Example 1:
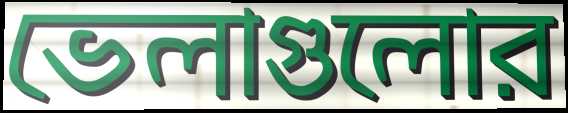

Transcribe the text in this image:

ভেলাগুলোর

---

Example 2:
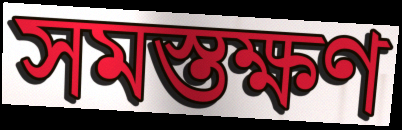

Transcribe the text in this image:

সমস্তক্ষণ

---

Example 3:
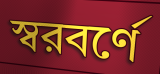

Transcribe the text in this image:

স্বরবর্ণে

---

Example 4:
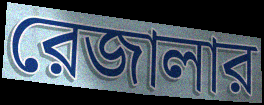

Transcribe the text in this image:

রেজালার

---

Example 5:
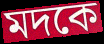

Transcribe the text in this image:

মদকে